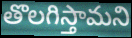
తొలగిస్తామని